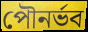
পৌনর্ভব